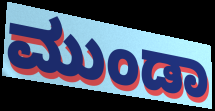
ಮುಂಡಾ